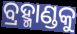
ବ୍ରହ୍ମାଣ୍ଡକୁ